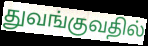
துவங்குவதில்